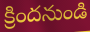
క్రిందనుండి